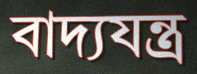
বাদ্যযন্ত্ৰ